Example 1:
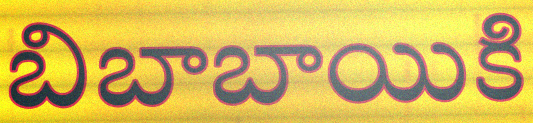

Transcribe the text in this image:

బిబాబాయికి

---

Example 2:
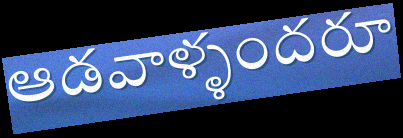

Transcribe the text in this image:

ఆడవాళ్ళందరూ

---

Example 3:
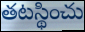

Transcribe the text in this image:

తటస్థించు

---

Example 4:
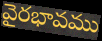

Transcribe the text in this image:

వైరభావము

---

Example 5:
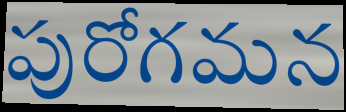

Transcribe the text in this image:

పురోగమన